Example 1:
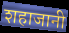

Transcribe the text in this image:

शहाजानी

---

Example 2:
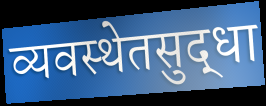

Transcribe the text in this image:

व्यवस्थेतसुद्धा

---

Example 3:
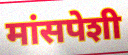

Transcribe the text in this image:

मांसपेशी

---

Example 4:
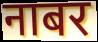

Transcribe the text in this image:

नाबर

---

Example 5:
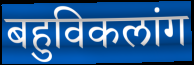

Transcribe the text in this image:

बहुविकलांग